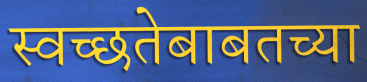
स्वच्छतेबाबतच्या